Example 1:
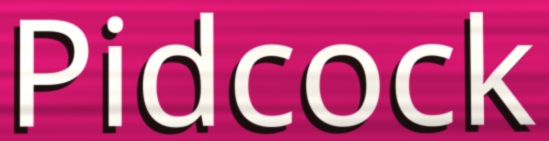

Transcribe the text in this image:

Pidcock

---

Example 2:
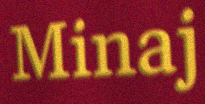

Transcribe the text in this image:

Minaj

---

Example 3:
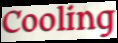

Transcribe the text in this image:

Cooling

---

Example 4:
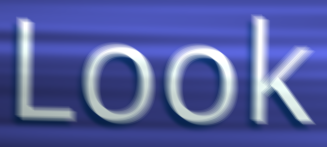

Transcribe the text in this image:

Look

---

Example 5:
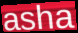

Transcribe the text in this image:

asha